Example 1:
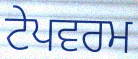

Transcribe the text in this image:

ਟੇਪਵਰਮ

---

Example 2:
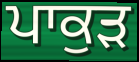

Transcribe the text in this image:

ਪਾਕੁੜ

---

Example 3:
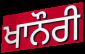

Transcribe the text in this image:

ਖਾਨੌਰੀ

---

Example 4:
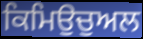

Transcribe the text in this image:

ਕਿਮਿਉਚੁਅਲ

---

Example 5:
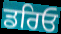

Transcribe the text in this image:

ਡਰਿਓ